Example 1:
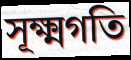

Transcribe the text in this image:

সূক্ষ্মগতি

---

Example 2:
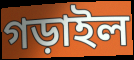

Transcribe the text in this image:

গড়াইল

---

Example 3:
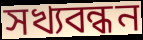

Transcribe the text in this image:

সখ্যবন্ধন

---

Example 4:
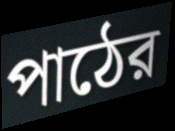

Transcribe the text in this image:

পাঠের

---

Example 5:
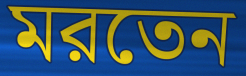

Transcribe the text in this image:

মরতেন